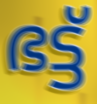
ഭട്ട്